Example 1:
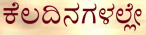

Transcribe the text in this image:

ಕೆಲದಿನಗಳಲ್ಲೇ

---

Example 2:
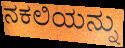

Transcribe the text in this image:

ನಕಲಿಯನ್ನು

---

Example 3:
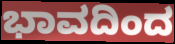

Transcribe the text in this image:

ಭಾವದಿಂದ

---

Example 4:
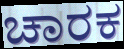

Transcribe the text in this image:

ಚಾರಕ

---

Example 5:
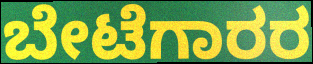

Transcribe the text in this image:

ಬೇಟೆಗಾರರ